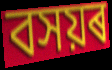
বসয়ৰ